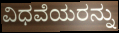
ವಿಧವೆಯರನ್ನು